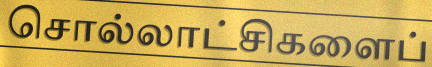
சொல்லாட்சிகளைப்